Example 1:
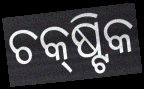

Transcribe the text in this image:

ଚକ୍‌ଷ୍ଟିକ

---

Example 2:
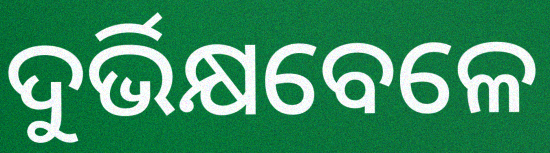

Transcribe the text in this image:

ଦୁର୍ଭିକ୍ଷବେଳେ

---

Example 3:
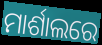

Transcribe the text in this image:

ମାର୍ଶାଲରେ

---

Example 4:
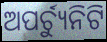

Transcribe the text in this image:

ଅପର୍ଚ୍ୟୁନିଟି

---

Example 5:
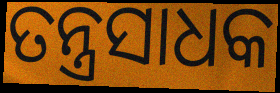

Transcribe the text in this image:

ତନ୍ତ୍ରସାଧକ